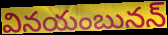
వినయంబునన్